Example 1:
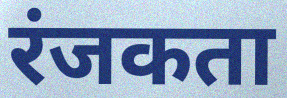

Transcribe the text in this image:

रंजकता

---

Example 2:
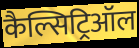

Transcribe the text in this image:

कैल्सिट्रिऑल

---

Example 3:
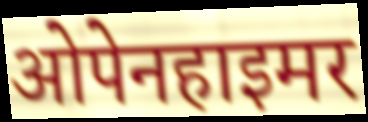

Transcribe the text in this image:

ओपेनहाइमर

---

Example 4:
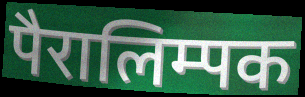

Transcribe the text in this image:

पैरालिम्पक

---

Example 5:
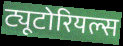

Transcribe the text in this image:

ट्यूटोरियल्स